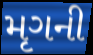
મૃગની